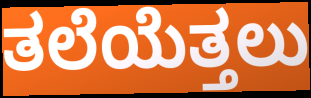
ತಲೆಯೆತ್ತಲು